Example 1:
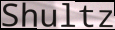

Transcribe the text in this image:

Shultz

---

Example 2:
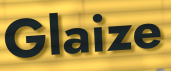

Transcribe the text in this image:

Glaize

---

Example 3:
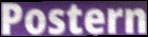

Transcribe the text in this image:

Postern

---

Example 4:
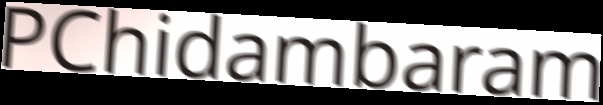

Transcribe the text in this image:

PChidambaram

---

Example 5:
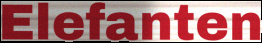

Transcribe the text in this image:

Elefanten